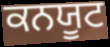
ਕਨਯੂਟ